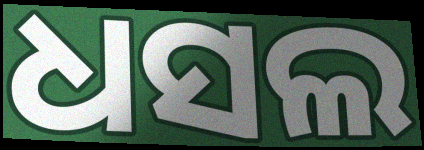
ଧସଲ